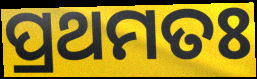
ପ୍ରଥମତଃ